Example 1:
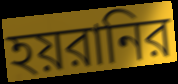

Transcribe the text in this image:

হয়রানির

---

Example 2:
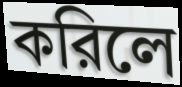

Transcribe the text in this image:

করিলে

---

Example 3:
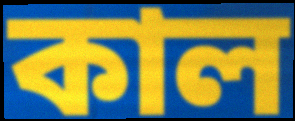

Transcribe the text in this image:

কাল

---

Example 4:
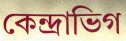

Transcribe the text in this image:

কেন্দ্রাভিগ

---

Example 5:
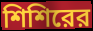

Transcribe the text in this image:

শিশিরের